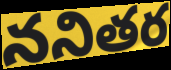
ననితర